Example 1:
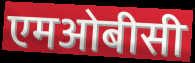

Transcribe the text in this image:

एमओबीसी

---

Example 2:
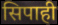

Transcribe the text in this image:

सिपाही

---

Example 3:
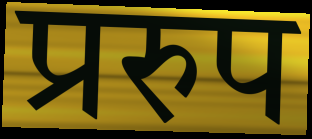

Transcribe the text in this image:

प्ररुप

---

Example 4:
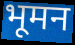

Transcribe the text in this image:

भूमन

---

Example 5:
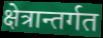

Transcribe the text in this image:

क्षेत्रान्‍तर्गत